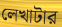
লেখাটার